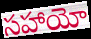
సహాయో